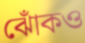
ঝোঁকও